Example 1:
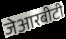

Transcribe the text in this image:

जेआरबीटी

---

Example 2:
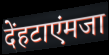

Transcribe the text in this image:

देंहटाएंमजा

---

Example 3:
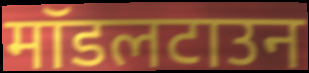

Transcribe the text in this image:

मॉडलटाउन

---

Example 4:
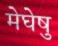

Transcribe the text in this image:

मेघेषु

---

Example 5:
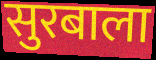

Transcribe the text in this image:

सुरबाला